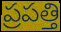
ప్రపత్తి